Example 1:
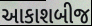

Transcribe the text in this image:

આકાશબીજ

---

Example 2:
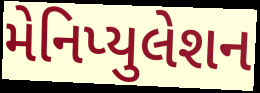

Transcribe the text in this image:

મેનિપ્યુલેશન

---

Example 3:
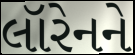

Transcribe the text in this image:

લૉરેનને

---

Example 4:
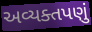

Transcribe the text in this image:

અવ્યક્તપણું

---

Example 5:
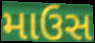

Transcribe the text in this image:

માઉસ